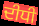
ਦੀਧੀ